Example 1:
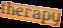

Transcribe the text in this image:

therapy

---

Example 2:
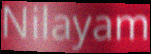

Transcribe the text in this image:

Nilayam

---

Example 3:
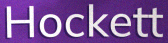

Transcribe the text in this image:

Hockett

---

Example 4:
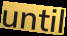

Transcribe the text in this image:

until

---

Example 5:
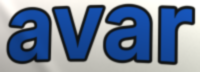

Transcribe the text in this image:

avar